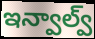
ఇన్వాల్వ్